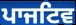
ਪਾਜਟਿਵ